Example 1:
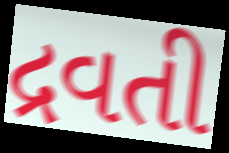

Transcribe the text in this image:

દ્રવતી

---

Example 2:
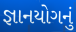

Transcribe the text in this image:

જ્ઞાનયોગનું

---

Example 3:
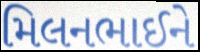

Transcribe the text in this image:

મિલનભાઈને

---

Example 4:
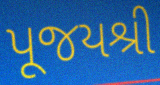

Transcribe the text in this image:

પૂજયશ્રી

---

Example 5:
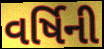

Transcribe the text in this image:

વર્ષિની